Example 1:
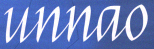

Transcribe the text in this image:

unnao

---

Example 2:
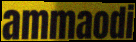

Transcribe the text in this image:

ammaodi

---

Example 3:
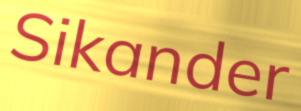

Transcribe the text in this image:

Sikander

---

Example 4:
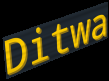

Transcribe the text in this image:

Ditwa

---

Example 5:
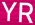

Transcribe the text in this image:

YR